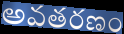
అవతరణం